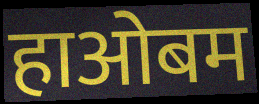
हाओबम